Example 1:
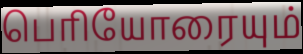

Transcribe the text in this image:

பெரியோரையும்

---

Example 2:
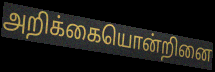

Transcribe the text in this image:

அறிக்கையொன்றினை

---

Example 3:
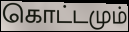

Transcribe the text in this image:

கொட்டமும்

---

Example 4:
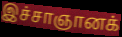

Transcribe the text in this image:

இச்சாஞானக்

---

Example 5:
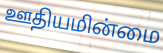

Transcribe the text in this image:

ஊதியமின்மை